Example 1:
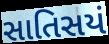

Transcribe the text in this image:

સાતિસયં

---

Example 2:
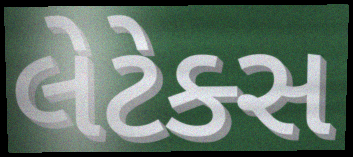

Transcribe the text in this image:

લેટેક્સ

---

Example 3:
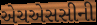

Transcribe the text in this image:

એચએસસીની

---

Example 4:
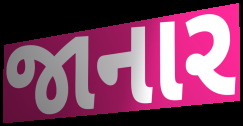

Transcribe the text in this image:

જાનાર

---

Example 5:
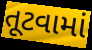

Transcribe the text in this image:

તૂટવામાં